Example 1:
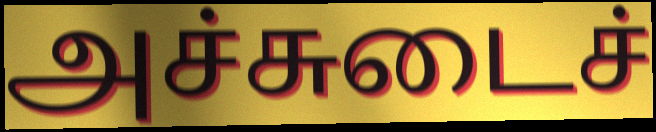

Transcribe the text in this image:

அச்சுடைச்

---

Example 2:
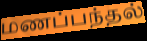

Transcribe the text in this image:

மணப்பந்தல்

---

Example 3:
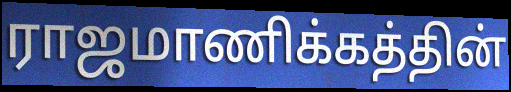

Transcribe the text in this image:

ராஜமாணிக்கத்தின்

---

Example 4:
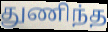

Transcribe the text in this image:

துணிந்த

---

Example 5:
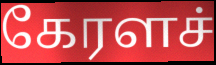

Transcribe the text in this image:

கேரளச்